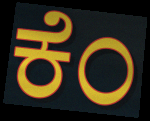
ಕೆಂ